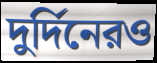
দুর্দিনেরও